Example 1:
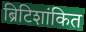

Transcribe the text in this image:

ब्रिटिशांकित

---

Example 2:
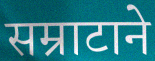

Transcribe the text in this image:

सम्राटाने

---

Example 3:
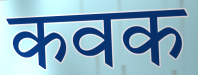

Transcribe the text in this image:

कवक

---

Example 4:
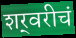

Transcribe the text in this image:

शर्वरीचं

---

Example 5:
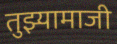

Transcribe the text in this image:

तुझ्यामाजी